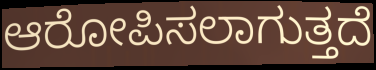
ಆರೋಪಿಸಲಾಗುತ್ತದೆ